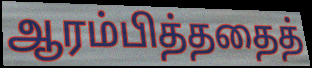
ஆரம்பித்ததைத்